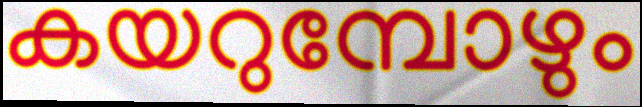
കയറുമ്പോഴും